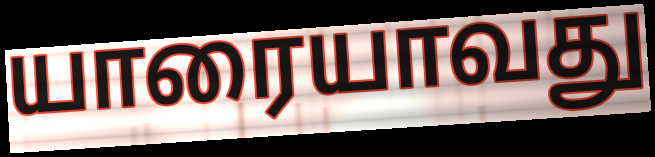
யாரையாவது